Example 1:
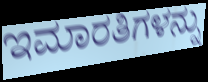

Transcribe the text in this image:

ಇಮಾರತಿಗಳನ್ನು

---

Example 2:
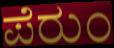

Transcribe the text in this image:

ಪೆರುಂ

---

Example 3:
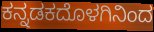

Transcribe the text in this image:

ಕನ್ನಡಕದೊಳಗಿನಿಂದ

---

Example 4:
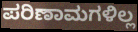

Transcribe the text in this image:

ಪರಿಣಾಮಗಳಿಲ್ಲ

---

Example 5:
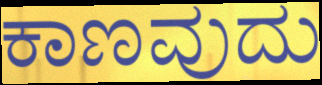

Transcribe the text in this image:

ಕಾಣವುದು